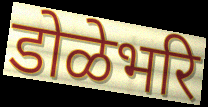
डोळेभरि